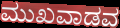
ಮುಖವಾಡವ